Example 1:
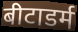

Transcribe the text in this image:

बीटाडर्म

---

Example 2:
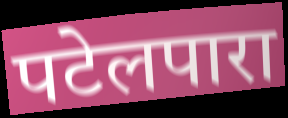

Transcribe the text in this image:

पटेलपारा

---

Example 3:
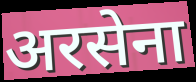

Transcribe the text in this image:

अरसेना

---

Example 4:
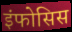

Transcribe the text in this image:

इंफोसिस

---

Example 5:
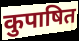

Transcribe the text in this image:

कुपाषित